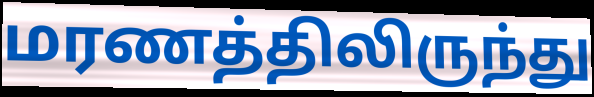
மரணத்திலிருந்து